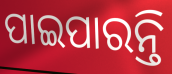
ପାଇପାରନ୍ତି